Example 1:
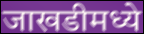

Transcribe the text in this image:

जाखडीमध्ये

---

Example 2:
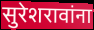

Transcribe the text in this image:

सुरेशरावांना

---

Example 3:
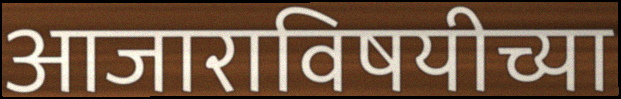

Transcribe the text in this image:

आजाराविषयीच्या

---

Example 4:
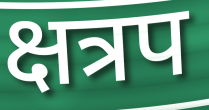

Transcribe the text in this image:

क्षत्रप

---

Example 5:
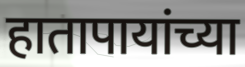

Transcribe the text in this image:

हातापायांच्या